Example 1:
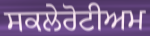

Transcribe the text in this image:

ਸਕਲੇਰੋਟੀਅਮ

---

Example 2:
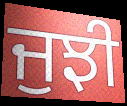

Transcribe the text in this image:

ਜੁਝੀ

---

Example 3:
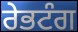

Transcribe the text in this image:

ਰੇਭਟੰਗ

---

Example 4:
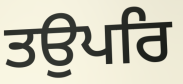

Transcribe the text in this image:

ਤਉਪਰਿ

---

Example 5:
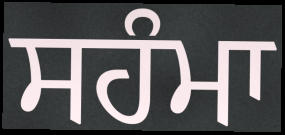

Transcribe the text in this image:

ਸਹੰਮਾ